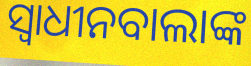
ସ୍ୱାଧୀନବାଲାଙ୍କ